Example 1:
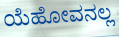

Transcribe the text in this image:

ಯೆಹೋವನಲ್ಲ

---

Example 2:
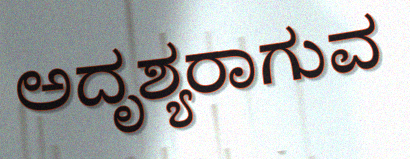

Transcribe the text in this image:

ಅದೃಶ್ಯರಾಗುವ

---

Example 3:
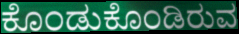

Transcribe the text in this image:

ಕೊಂಡುಕೊಂಡಿರುವ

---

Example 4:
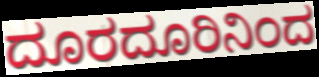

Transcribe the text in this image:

ದೂರದೂರಿನಿಂದ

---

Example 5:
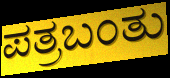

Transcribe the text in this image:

ಪತ್ರಬಂತು